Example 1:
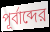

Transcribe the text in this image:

পূর্বাব্দের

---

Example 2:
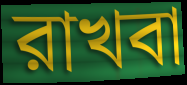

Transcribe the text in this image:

রাখবা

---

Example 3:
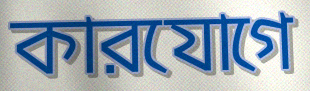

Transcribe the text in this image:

কারযোগে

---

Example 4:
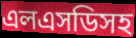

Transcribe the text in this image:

এলএসডিসহ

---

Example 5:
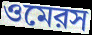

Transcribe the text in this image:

ওমেরস